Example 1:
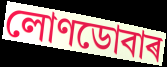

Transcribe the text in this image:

লোণডোবাৰ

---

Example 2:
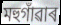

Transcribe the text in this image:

মহুগাঁৱাৰ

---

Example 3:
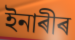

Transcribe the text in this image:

ইনাৰীৰ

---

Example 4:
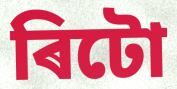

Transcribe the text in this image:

ৰিটো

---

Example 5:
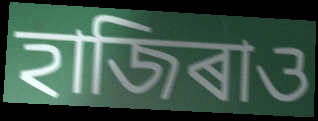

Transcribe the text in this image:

হাজিৰাও